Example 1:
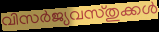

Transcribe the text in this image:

വിസർജ്യവസ്തുക്കൾ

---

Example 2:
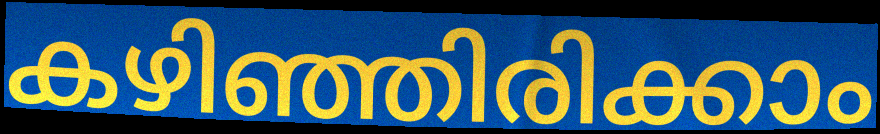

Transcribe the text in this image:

കഴിഞ്ഞിരിക്കാം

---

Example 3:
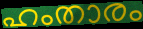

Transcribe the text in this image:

ഹംതാരം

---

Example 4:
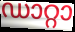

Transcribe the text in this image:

ഡാറ്റാ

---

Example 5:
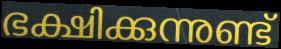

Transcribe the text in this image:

ഭക്ഷിക്കുന്നുണ്ട്